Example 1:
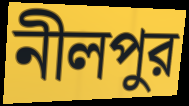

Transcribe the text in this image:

নীলপুর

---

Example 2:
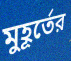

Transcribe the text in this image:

মুহূর্তের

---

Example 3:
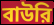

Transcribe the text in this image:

বাউরি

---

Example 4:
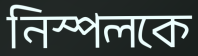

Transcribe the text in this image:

নিস্পলকে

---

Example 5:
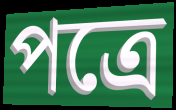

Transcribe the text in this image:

পত্রে